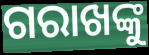
ଗରାଖଙ୍କୁ